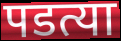
पडत्या